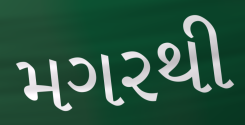
મગરથી